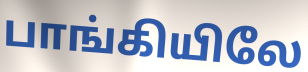
பாங்கியிலே